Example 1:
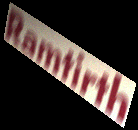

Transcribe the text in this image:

Ramtirth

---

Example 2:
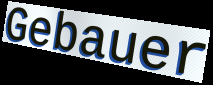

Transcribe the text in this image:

Gebauer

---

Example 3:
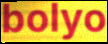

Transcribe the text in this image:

bolyo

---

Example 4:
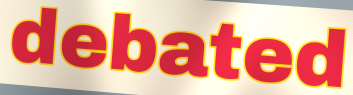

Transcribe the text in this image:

debated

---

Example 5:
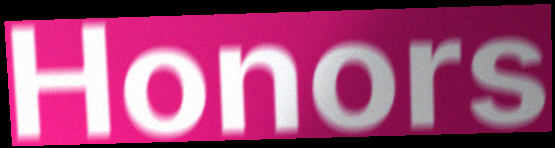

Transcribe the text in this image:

Honors